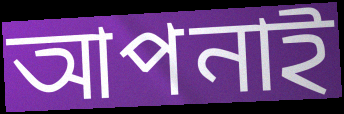
আপনাই